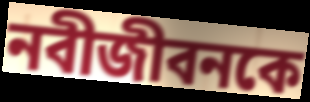
নবীজীবনকে